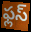
ఫ్లస్